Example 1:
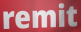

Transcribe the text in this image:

remit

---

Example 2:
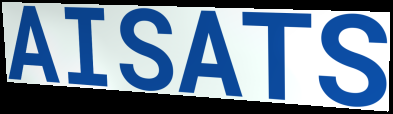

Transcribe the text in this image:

AISATS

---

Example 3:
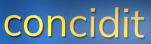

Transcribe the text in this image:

concidit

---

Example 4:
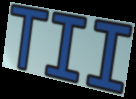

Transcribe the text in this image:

TII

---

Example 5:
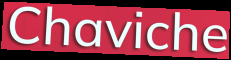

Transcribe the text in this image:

Chaviche